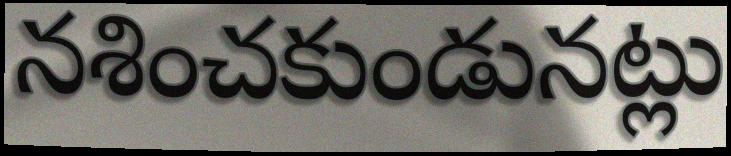
నశించకుండునట్లు